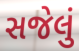
સજેલું